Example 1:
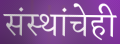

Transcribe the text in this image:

संस्थांचेही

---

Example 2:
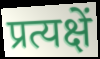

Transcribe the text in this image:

प्रत्यक्षें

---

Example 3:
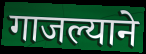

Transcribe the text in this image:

गाजल्याने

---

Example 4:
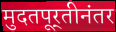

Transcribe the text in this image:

मुदतपूर्तीनंतर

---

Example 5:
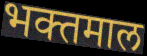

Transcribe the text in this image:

भक्तमाल